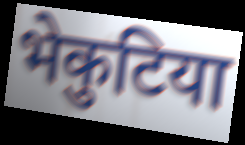
भेकुटिया